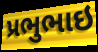
પ્રભુભાઇ